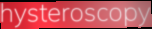
hysteroscopy